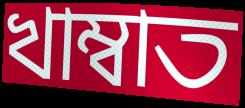
খাম্বাত